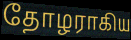
தோழராகிய